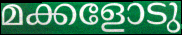
മക്കളോടു